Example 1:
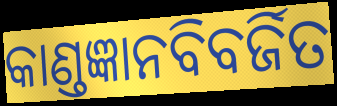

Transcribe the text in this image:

କାଣ୍ଡଜ୍ଞାନବିବର୍ଜିତ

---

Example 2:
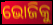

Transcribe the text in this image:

ଭୋଜିକୁ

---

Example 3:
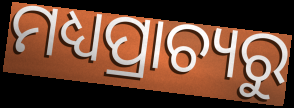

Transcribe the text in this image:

ମଧ୍ୟପ୍ରାଚ୍ୟରୁ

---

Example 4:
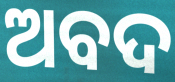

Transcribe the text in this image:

ଅବଦ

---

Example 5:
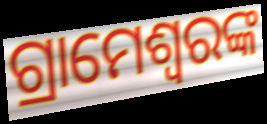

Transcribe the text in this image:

ଗ୍ରାମେଶ୍ୱରଙ୍କ